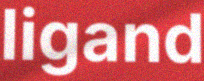
ligand